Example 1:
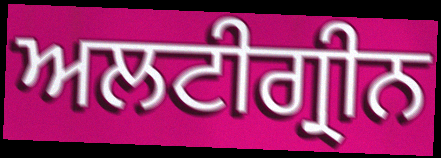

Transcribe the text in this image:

ਅਲਟੀਗ੍ਰੀਨ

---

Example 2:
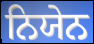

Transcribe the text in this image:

ਨਿਯੇਨ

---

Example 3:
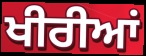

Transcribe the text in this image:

ਖੀਰੀਆਂ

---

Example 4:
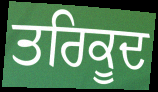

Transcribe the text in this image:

ਤਰਿਕੂਦ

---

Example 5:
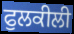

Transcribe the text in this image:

ਫੁਲਕੀਲੀ